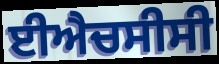
ਈਐਚਸੀਸੀ